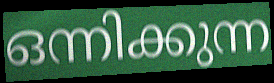
ഒന്നിക്കുന്ന